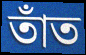
তাঁত